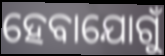
ହେବାଯୋଗୁଁ